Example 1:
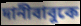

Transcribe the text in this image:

দানীবাবুকে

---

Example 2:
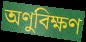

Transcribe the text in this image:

অণুবিক্ষণ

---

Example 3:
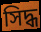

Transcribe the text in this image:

সিদ্ধ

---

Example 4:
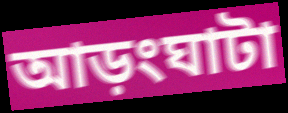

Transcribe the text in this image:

আড়ংঘাটা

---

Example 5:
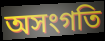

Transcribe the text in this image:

অসংগতি